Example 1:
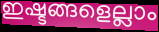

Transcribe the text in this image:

ഇഷ്ടങ്ങളെല്ലാം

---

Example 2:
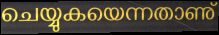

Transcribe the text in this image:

ചെയ്യുകയെന്നതാണു്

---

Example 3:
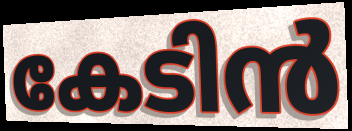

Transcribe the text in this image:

കേടിൻ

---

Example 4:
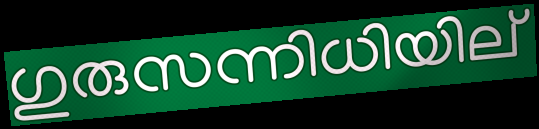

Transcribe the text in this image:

ഗുരുസന്നിധിയില്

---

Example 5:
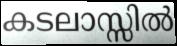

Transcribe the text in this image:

കടലാസ്സിൽ